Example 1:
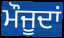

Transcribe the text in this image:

ਮੌਜੂਦਾਂ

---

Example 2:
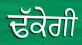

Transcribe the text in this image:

ਢੱਕੇਗੀ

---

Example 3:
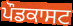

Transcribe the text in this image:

ਪੌਡਕਾਸਟ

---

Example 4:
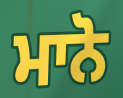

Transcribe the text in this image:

ਮਾਨੋ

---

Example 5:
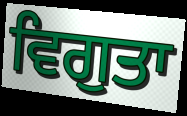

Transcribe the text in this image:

ਵਿਗੁਤਾ